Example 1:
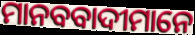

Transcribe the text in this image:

ମାନବବାଦୀମାନେ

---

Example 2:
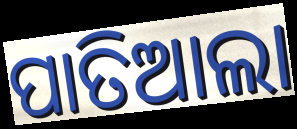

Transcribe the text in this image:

ପାତିଆଲା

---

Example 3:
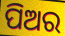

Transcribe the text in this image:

ପିଅର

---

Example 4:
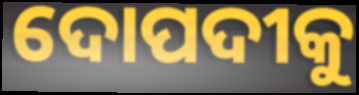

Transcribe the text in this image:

ଦୋପଦୀକୁ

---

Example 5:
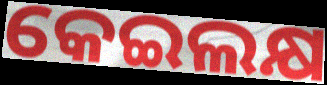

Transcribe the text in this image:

କେଇଲକ୍ଷ